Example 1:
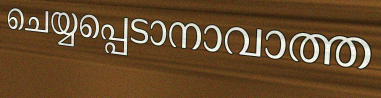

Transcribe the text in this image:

ചെയ്യപ്പെടാനാവാത്ത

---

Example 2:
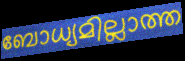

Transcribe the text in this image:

ബോധ്യമില്ലാത്ത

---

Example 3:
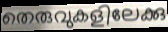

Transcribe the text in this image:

തെരുവുകളിലേക്കു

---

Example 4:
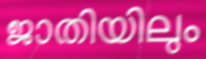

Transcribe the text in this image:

ജാതിയിലും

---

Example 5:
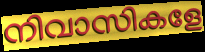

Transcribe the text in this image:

നിവാസികളേ